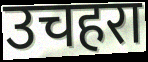
उचहरा